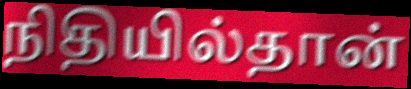
நிதியில்தான்